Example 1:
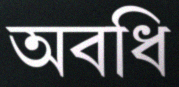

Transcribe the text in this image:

অবধি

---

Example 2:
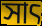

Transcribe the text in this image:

সাৎ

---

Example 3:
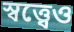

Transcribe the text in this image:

স্বত্ত্বেও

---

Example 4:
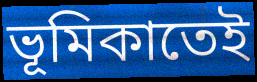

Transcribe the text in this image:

ভূমিকাতেই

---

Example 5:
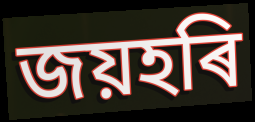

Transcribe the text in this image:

জয়হৰি